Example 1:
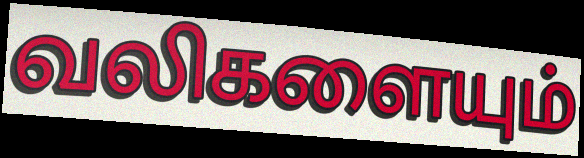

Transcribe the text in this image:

வலிகளையும்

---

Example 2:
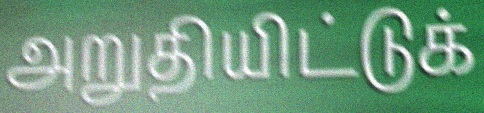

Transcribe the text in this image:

அறுதியிட்டுக்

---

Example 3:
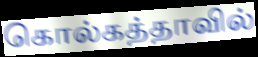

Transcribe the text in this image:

கொல்கத்தாவில்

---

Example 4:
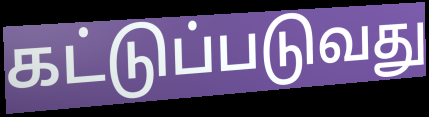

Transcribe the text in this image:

கட்டுப்படுவது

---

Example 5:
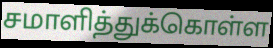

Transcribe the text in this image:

சமாளித்துக்கொள்ள